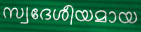
സ്വദേശീയമായ